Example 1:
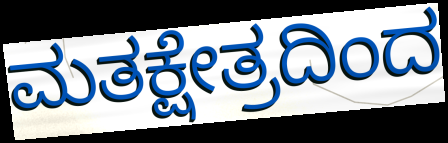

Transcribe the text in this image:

ಮತಕ್ಷೇತ್ರದಿಂದ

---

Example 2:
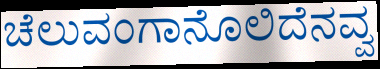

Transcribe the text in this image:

ಚೆಲುವಂಗಾನೊಲಿದೆನವ್ವ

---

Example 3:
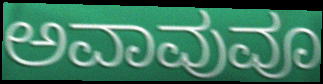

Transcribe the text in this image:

ಅವಾವುವೂ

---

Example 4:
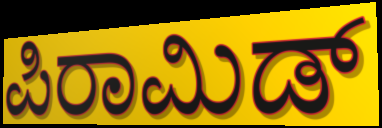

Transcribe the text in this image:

ಪಿರಾಮಿಡ್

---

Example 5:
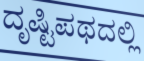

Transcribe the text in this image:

ದೃಷ್ಟಿಪಥದಲ್ಲಿ